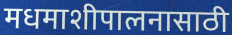
मधमाशीपालनासाठी